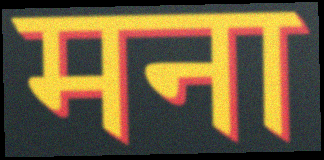
मना